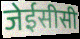
जेईसीसी